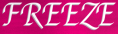
FREEZE